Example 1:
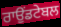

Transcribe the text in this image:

ਰਾਉਂਡਟੇਬਲ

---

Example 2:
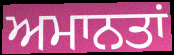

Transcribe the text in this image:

ਅਮਾਨਤਾਂ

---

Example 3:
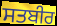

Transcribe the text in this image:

ਸਤਬੀਰ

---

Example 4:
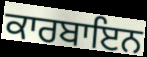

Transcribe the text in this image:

ਕਾਰਬਾਇਨ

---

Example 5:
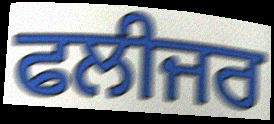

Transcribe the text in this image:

ਫਲੀਜਰ